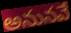
అనునవే